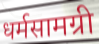
धर्मसामग्री